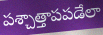
పశ్చాత్తాపపడేలా